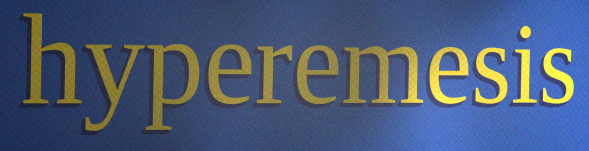
hyperemesis